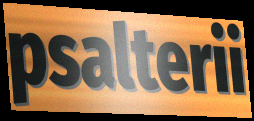
psalterii